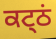
ਕਟ੍ਠਂ